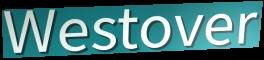
Westover